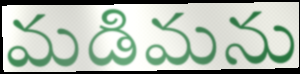
మడిమను